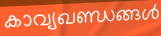
കാവ്യഖണ്ഡങ്ങൾ